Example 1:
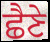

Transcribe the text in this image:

ਛੈਣੇ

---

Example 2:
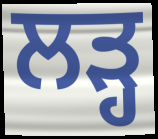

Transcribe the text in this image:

ਲੜ੍ਹ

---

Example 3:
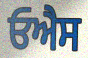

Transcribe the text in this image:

ਓਐਸ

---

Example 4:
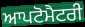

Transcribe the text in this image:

ਆਪਟੋਮੈਟਰੀ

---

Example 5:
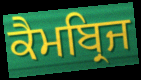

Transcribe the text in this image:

ਕੈਮਬ੍ਰਿਜ